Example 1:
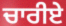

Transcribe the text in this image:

ਚਾਰੀਏ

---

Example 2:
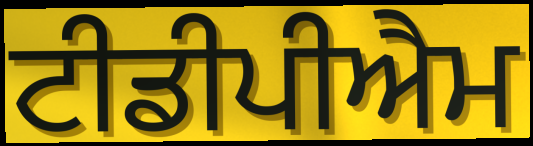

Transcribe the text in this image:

ਟੀਡੀਪੀਐਮ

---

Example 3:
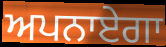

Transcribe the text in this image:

ਅਪਨਾਏਗਾ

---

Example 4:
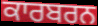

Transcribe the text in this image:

ਕਾਰਬਰਨ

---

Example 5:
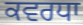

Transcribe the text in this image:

ਕਵਰਧਾ